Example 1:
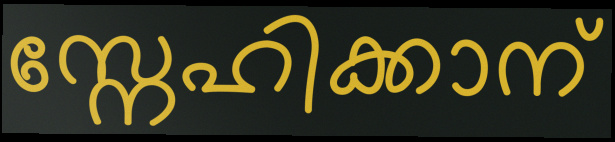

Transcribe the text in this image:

സ്നേഹിക്കാന്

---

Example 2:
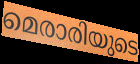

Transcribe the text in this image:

മെരാരിയുടെ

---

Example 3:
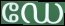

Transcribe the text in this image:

ഡേ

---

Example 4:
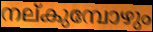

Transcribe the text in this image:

നല്കുമ്പോഴും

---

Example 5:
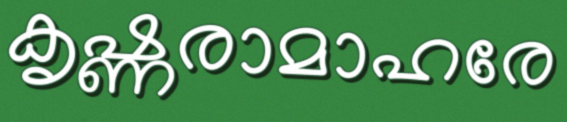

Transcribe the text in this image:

കൃഷ്ണരാമാഹരേ